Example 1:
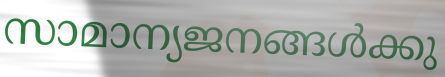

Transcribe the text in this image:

സാമാന്യജനങ്ങൾക്കു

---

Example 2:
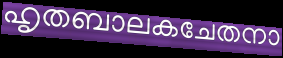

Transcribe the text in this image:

ഹൃതബാലകചേതനാ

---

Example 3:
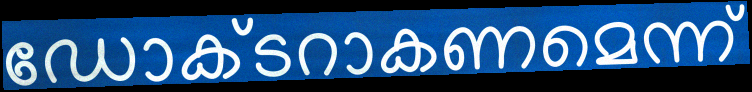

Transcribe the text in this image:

ഡോക്ടറാകണമെന്ന്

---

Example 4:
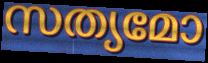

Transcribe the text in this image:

സത്യമോ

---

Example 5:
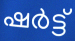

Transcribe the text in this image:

ഷർട്ട്